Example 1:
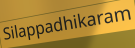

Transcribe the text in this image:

Silappadhikaram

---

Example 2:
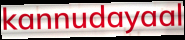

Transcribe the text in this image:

kannudayaal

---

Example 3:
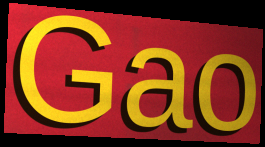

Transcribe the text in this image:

Gao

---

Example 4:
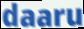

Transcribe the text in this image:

daaru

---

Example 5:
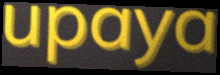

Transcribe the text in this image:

upaya